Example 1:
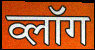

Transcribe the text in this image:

व्लॉग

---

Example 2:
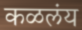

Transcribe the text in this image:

कळलंय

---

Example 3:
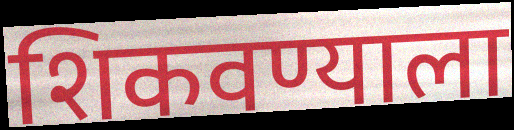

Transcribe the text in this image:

शिकवण्याला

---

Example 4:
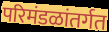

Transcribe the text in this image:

परिमंडळांतर्गत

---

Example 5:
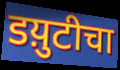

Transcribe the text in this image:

डय़ुटीचा